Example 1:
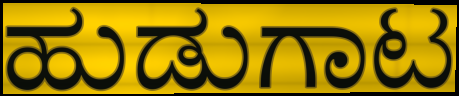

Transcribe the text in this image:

ಹುಡುಗಾಟ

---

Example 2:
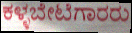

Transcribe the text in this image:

ಕಳ್ಳಬೇಟೆಗಾರರು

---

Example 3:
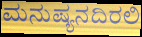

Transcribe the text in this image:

ಮನುಷ್ಯನದಿರಲಿ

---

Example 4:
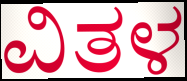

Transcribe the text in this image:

ವಿತಳ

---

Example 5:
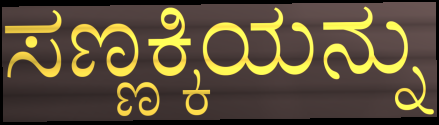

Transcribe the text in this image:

ಸಣ್ಣಕ್ಕಿಯನ್ನು